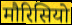
मौरिसियो